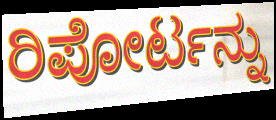
ರಿಪೋರ್ಟನ್ನು